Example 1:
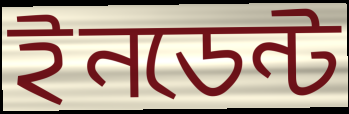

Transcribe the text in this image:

ইনডেন্ট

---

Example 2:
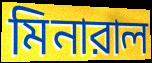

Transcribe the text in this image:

মিনারাল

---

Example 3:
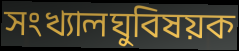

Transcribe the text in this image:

সংখ্যালঘুবিষয়ক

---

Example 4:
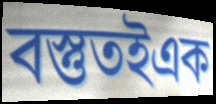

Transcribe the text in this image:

বস্তুতইএক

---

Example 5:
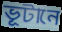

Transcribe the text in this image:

ভূটানে